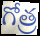
గోత్ర